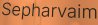
Sepharvaim